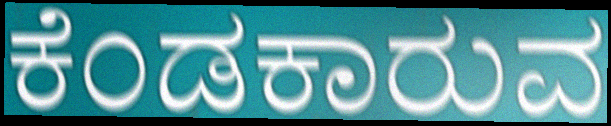
ಕೆಂಡಕಾರುವ